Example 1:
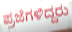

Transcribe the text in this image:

ಪ್ರಜೆಗಳಿದ್ದರು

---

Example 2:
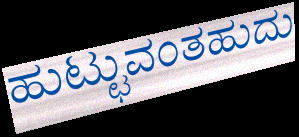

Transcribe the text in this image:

ಹುಟ್ಟುವಂತಹುದು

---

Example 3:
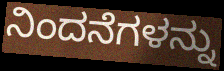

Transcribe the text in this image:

ನಿಂದನೆಗಳನ್ನು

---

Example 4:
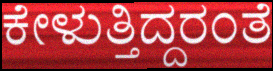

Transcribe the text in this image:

ಕೇಳುತ್ತಿದ್ದರಂತೆ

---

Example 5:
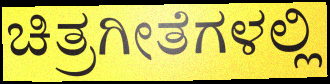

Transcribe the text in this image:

ಚಿತ್ರಗೀತೆಗಳಲ್ಲಿ